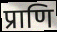
प्राणि